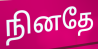
நினதே